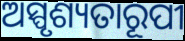
ଅସ୍ପୃଶ୍ୟତାରୂପୀ